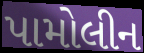
પામોલીન